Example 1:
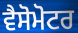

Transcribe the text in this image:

ਵੈਸੋਮੋਟਰ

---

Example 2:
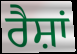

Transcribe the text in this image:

ਰੈਸ਼ਾਂ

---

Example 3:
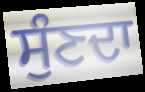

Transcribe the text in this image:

ਸੁੰਣਦਾ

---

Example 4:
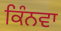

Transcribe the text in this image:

ਕਿੰਨਵਾ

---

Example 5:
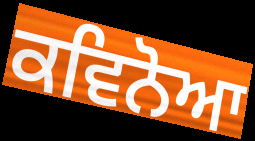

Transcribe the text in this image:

ਕਵਿਨੋਆ